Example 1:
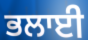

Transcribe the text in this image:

ਭਲਾਈ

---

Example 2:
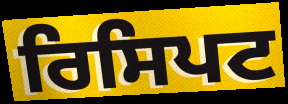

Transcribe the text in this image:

ਰਿਸਿਪਟ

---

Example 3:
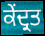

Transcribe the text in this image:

ਕੇਂਦ੍ਰਤ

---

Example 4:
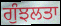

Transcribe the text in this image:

ਗੁੰਝਲਤਾ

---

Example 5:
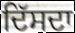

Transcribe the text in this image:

ਦਿੱਸਦਾ